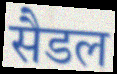
सैडल